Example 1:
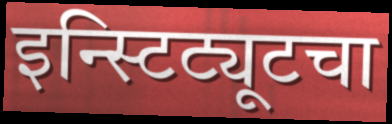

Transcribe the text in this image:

इन्स्टिट्यूटचा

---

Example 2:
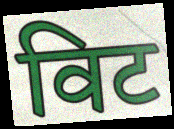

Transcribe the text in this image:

विट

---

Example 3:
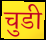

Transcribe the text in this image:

चुडी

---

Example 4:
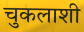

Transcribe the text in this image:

चुकलाशी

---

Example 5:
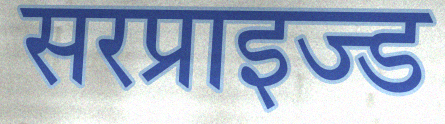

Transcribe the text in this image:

सरप्राइज्ड